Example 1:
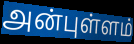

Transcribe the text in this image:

அன்புள்ளம்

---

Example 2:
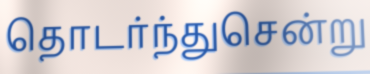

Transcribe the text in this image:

தொடர்ந்துசென்று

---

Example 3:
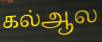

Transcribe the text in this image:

கல்ஆல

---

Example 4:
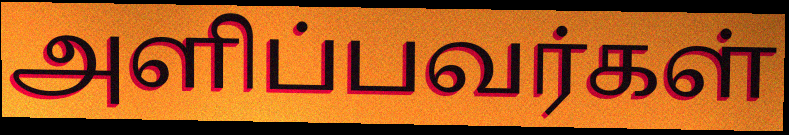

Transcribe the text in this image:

அளிப்பவர்கள்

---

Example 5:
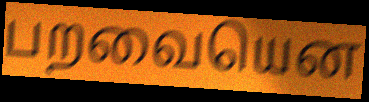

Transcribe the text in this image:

பறவையென